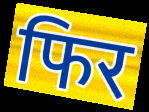
फिर